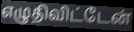
எழுதிவிட்டேன்